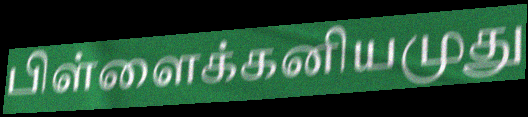
பிள்ளைக்கனியமுது